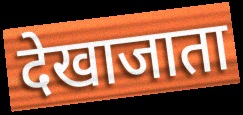
देखाजाता